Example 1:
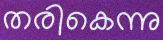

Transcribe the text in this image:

തരികെന്നു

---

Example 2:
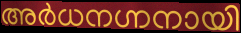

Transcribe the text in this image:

അർധനഗ്നനായി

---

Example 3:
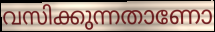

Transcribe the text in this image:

വസിക്കുന്നതാണോ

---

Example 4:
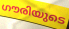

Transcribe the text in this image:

ഗൗരിയുടെ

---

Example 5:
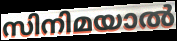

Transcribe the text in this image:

സിനിമയാൽ